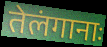
तेलंगानाः